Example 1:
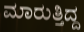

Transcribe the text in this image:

ಮಾರುತ್ತಿದ್ದ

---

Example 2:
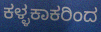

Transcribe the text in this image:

ಕಳ್ಳಕಾಕರಿಂದ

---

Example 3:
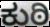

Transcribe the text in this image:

ಕುಠಿ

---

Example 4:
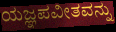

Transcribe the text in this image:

ಯಜ್ಞಪವೀತವನ್ನು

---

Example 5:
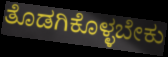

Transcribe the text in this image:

ತೊಡಗಿಕೊಳ್ಳಬೇಕು